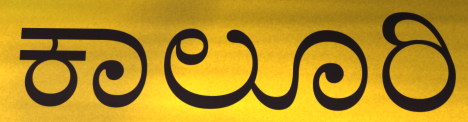
ಕಾಲೂರಿ